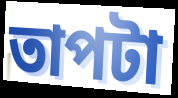
তাপটা